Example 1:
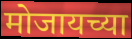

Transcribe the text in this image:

मोजायच्या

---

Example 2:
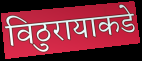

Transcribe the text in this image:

विठुरायाकडे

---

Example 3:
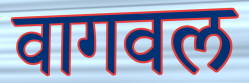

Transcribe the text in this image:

वागवल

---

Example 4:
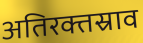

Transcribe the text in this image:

अतिरक्तस्राव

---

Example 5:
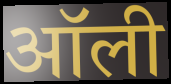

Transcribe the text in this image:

ऑली